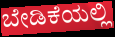
ಬೇಡಿಕೆಯಲ್ಲಿ